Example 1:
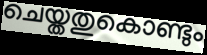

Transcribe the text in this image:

ചെയ്തതുകൊണ്ടും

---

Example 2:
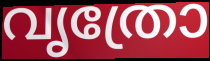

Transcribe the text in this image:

വൃത്രോ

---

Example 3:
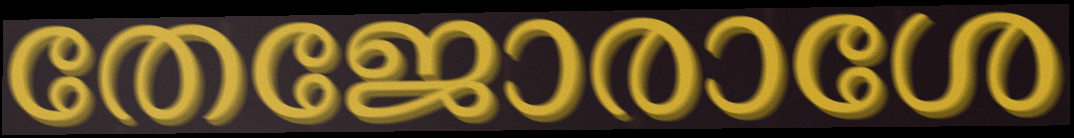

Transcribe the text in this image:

തേജോരാശേ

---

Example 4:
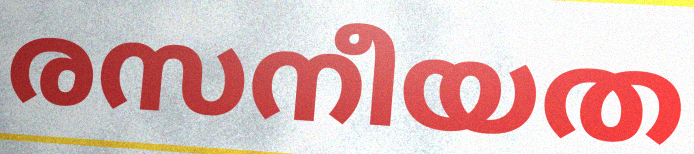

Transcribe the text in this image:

രസനീയത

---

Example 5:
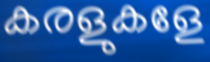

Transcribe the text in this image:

കരളുകളേ